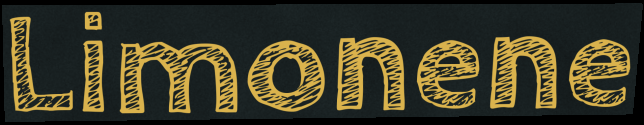
Limonene